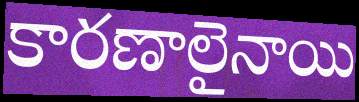
కారణాలైనాయి